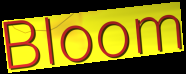
Bloom